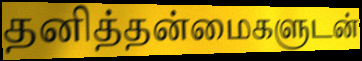
தனித்தன்மைகளுடன்